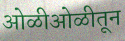
ओळीओळीतून